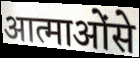
आत्माओंसे